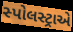
સ્પોલસ્ટ્રાએ